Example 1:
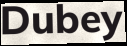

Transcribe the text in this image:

Dubey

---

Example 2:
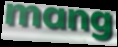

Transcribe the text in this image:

mang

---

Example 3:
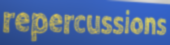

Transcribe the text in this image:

repercussions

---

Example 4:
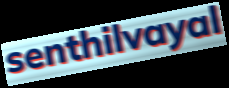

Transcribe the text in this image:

senthilvayal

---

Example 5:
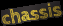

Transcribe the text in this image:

chassis